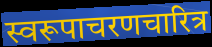
स्वरूपाचरणचारित्र